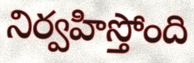
నిర్వహిస్తోంది